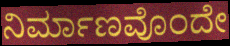
ನಿರ್ಮಾಣವೊಂದೇ